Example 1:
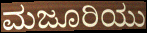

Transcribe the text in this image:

ಮಜೂರಿಯು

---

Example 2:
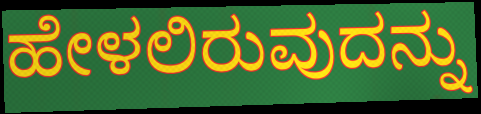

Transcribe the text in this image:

ಹೇಳಲಿರುವುದನ್ನು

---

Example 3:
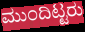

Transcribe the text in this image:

ಮುಂದಿಟ್ಟರು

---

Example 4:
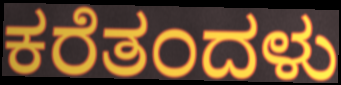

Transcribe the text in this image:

ಕರೆತಂದಳು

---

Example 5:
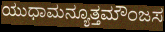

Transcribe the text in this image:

ಯುಧಾಮನ್ಯೂತ್ತಮೌಂಜಸ